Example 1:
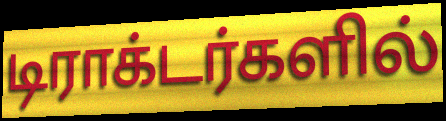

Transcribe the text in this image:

டிராக்டர்களில்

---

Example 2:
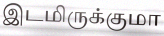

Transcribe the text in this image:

இடமிருக்குமா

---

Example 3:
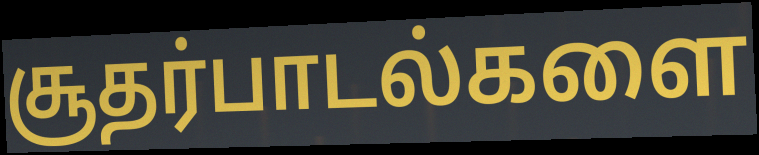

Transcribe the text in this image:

சூதர்பாடல்களை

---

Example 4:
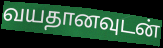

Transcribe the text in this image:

வயதானவுடன்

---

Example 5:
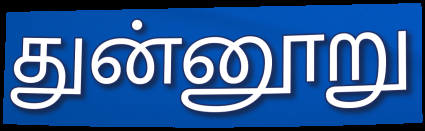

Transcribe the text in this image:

துன்னூறு